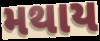
મથાય